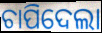
ଚାପିଦେଲା